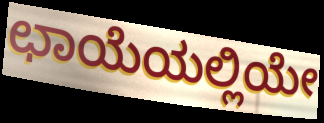
ಛಾಯೆಯಲ್ಲಿಯೇ